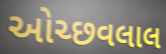
ઓચ્છવલાલ